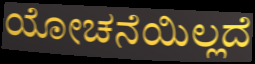
ಯೋಚನೆಯಿಲ್ಲದೆ